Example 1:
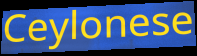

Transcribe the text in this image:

Ceylonese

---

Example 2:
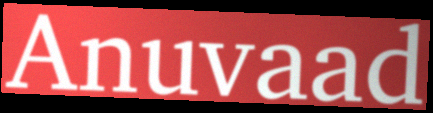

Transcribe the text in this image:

Anuvaad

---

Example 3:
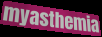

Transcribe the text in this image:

myasthemia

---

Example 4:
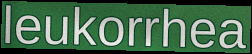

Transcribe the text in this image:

leukorrhea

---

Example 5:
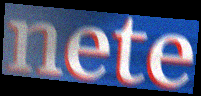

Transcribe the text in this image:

nete